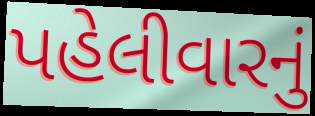
પહેલીવારનું